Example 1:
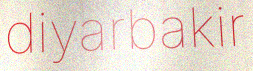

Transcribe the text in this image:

diyarbakir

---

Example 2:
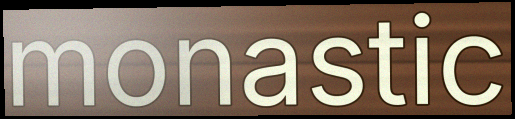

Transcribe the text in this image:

monastic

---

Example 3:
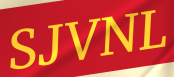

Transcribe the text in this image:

SJVNL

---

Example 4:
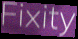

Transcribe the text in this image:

Fixity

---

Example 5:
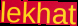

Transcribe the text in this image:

lekhat